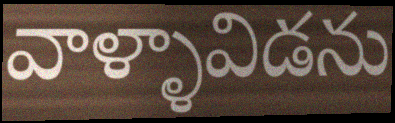
వాళ్ళావిడను